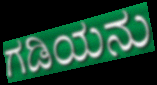
ಗಡಿಯನು